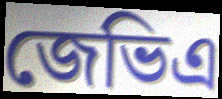
জেভিএ